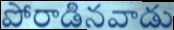
పోరాడినవాడు